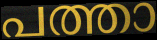
പത്താ